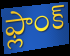
ఫ్లాంక్